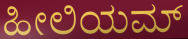
ಹೀಲಿಯಮ್